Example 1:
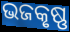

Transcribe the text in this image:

ଭଜକୃଷ୍ଣ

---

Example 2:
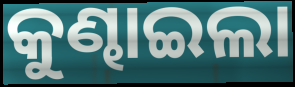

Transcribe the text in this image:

କୁଣ୍ଢାଇଲା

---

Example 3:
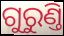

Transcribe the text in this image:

ଗୁରୁଣ୍ତି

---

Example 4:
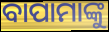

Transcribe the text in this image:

ବାପାମାଙ୍କୁ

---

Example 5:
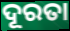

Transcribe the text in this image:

ଦୂରତା